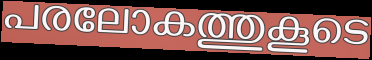
പരലോകത്തുകൂടെ